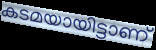
കടമയായിട്ടാണ്